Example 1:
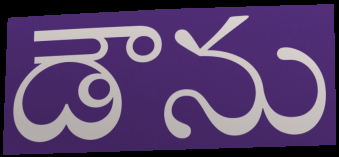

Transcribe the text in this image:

డౌను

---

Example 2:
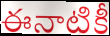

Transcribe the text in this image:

ఈనాటికీ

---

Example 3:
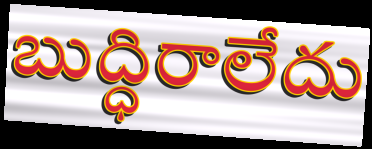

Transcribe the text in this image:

బుద్ధిరాలేదు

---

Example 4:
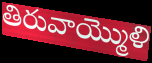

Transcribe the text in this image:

తిరువాయ్మొళి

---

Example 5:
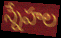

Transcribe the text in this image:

స్నేహల